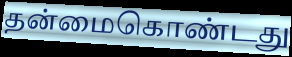
தன்மைகொண்டது